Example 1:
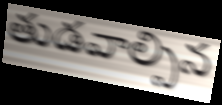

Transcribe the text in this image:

తుడవాల్సిన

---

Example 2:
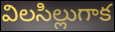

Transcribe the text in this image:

విలసిల్లుగాక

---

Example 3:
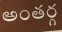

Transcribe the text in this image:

అంతర్గ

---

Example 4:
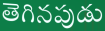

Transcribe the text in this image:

తెగినపుడు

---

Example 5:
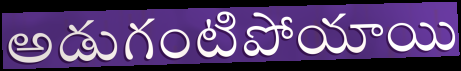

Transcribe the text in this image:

అడుగంటిపోయాయి